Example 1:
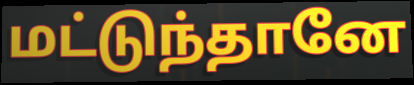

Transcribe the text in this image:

மட்டுந்தானே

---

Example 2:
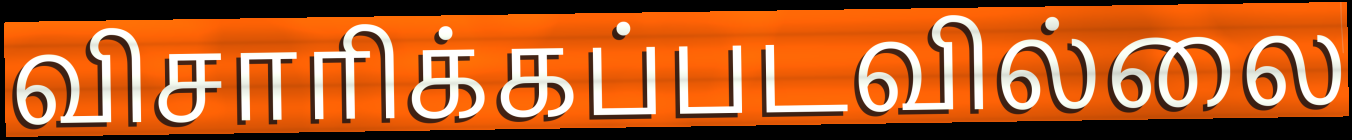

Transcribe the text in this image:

விசாரிக்கப்படவில்லை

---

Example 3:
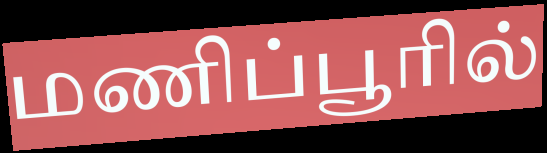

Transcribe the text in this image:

மணிப்பூரில்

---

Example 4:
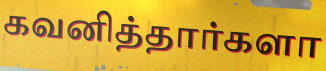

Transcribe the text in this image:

கவனித்தார்களா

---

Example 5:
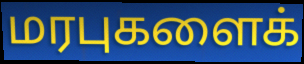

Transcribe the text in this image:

மரபுகளைக்